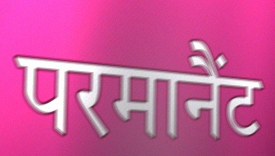
परमानैंट